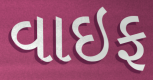
વાઇફ